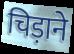
चिड़ाने